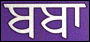
ਬਬਾ